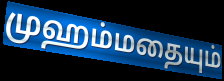
முஹம்மதையும்